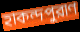
হাকন্দপুরাণ